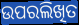
ଉପରଲିଖିତ